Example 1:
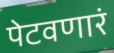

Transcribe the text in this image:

पेटवणारं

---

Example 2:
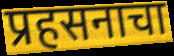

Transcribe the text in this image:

प्रहसनाचा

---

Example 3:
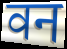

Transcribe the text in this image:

वन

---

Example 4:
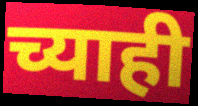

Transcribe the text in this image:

च्याही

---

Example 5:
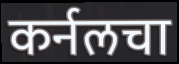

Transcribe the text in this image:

कर्नलचा